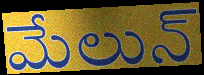
మేలున్